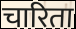
चारिता